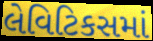
લેવિટિકસમાં